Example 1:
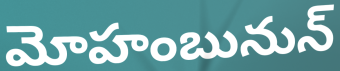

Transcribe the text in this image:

మోహంబునున్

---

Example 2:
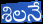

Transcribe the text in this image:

శిలనే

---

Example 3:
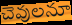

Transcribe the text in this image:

చెవులనూ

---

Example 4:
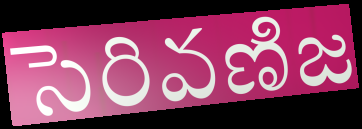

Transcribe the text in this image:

సెరివణిజ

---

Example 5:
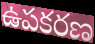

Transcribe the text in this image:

ఉపకరణ